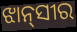
ଝାନ୍‌ସୀର